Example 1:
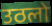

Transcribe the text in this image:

उठलो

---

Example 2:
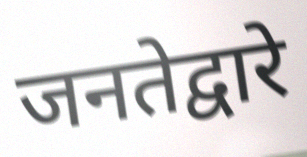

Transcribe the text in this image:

जनतेद्वारे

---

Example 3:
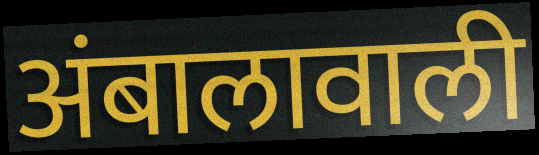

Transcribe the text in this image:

अंबालावाली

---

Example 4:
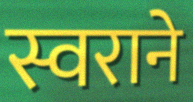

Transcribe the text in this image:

स्वराने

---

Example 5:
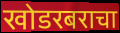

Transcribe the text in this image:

खोडरबराचा